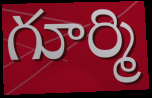
గూర్మి